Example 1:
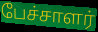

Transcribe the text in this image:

பேச்சாளர்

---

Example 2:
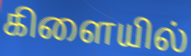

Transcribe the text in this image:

கிளையில்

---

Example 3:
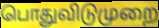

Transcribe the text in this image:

பொதுவிடுமுறை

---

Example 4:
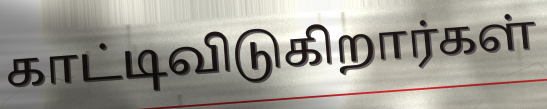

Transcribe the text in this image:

காட்டிவிடுகிறார்கள்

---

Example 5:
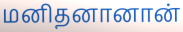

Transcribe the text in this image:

மனிதனானான்